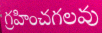
గ్రహించగలవు